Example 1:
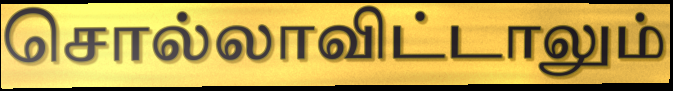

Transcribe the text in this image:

சொல்லாவிட்டாலும்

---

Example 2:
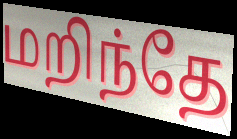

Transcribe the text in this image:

மறிந்தே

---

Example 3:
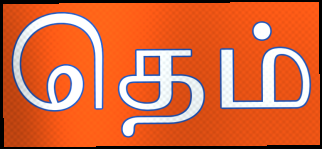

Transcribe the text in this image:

தெம்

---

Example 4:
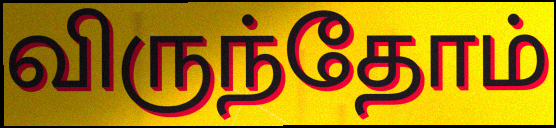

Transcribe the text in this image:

விருந்தோம்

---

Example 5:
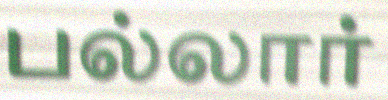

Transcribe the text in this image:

பல்லார்